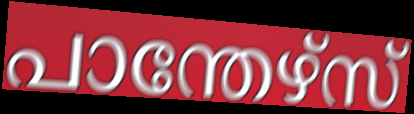
പാന്തേഴ്സ്